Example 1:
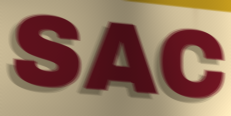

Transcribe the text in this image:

SAC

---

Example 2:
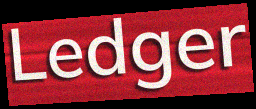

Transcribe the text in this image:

Ledger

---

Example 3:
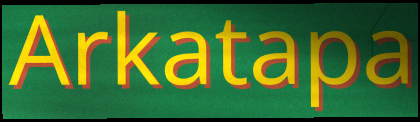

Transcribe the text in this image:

Arkatapa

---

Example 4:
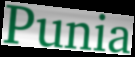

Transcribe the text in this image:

Punia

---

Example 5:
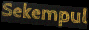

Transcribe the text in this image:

Sekempul